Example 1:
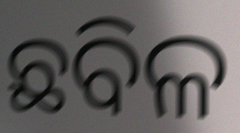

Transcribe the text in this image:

ଛବିଳ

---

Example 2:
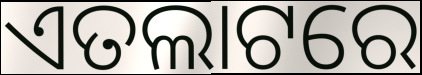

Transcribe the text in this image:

ଏତଲାଟରେ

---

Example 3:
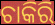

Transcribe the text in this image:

ଚାକିରି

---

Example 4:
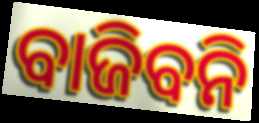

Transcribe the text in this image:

ବାଜିବନି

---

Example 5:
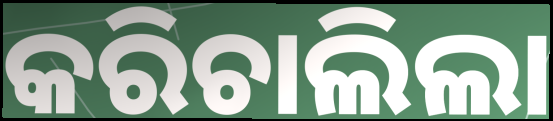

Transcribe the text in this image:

କରିଚାଲିଲା